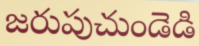
జరుపుచుండెడి